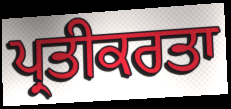
ਪ੍ਰਤੀਕਰਤਾ